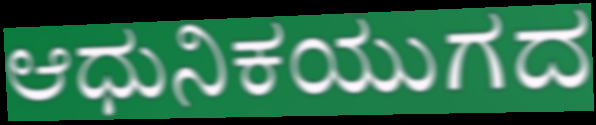
ಆಧುನಿಕಯುಗದ